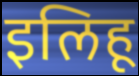
इलिहू